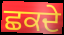
ਛਕਦੇ